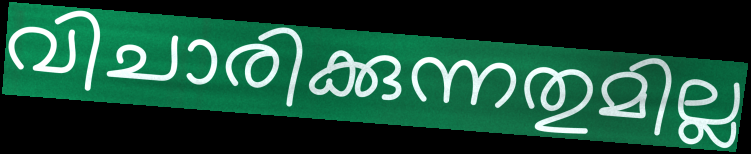
വിചാരിക്കുന്നതുമില്ല